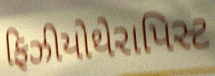
ફિઝીયોથેરાપિસ્ટ